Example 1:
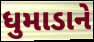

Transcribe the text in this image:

ધુમાડાને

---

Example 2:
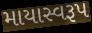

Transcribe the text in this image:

માયાસ્વરૂપ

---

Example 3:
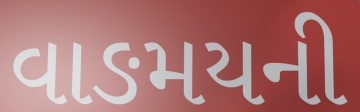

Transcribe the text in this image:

વાઙમયની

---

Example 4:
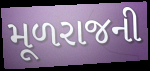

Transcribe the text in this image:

મૂળરાજની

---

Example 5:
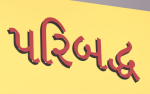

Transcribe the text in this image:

પરિબદ્ધ